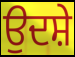
ਉਦਸ਼ੇ